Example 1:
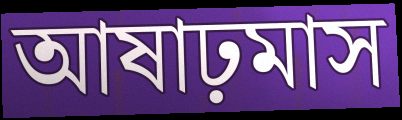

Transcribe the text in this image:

আষাঢ়মাস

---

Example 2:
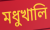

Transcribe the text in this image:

মধুখালি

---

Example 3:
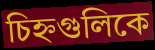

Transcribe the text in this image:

চিহ্নগুলিকে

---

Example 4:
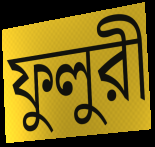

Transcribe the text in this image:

ফুলুরী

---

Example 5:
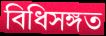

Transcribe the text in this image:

বিধিসঙ্গত